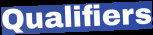
Qualifiers